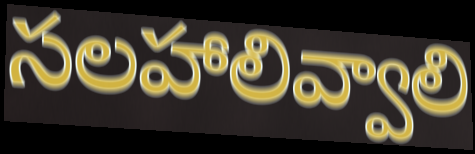
సలహాలివ్వాలి